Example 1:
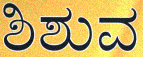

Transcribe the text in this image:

ಶಿಶುವ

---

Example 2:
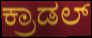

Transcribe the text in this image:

ಕ್ರಾಡಲ್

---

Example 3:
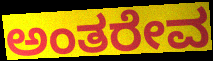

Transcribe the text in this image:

ಅಂತರೇವ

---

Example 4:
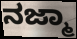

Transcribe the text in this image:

ನಜ್ಮಾ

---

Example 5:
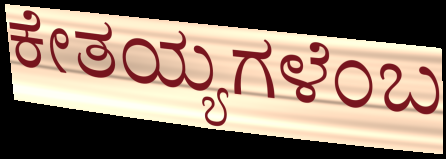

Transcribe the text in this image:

ಕೇತಯ್ಯಗಳೆಂಬ